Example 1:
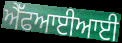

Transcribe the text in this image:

ਐੱਫਆਈਆਈ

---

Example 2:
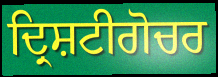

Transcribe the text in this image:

ਦ੍ਰਿਸ਼ਟੀਗੋਚਰ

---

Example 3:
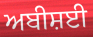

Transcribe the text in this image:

ਅਬੀਸ਼ਈ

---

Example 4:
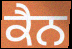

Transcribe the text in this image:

ਕੈਨ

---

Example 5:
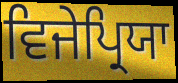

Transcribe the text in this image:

ਵਿਜੇਪ੍ਰਿਯਾ